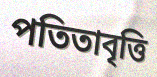
পতিতাবৃত্তি